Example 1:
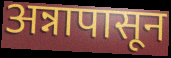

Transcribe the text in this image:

अन्नापासून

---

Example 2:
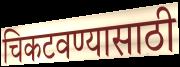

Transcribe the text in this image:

चिकटवण्यासाठी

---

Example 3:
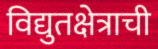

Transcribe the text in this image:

विद्युतक्षेत्राची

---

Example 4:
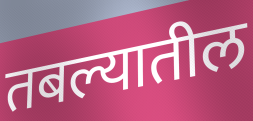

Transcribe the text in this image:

तबल्यातील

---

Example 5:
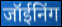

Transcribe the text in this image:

जॉईनिंग